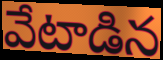
వేటాడిన